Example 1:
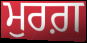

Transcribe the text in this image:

ਮੁਰਗ਼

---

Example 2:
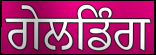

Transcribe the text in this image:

ਗੇਲਡਿੰਗ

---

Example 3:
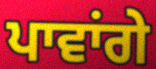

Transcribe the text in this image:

ਪਾਵਾਂਗੇ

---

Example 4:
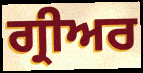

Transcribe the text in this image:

ਗ੍ਰੀਅਰ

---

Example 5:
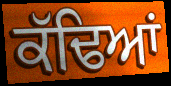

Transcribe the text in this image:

ਕੱਢਿਆਂ